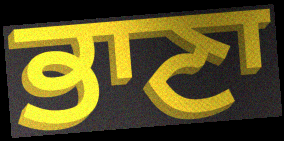
ਭਾਣਾ